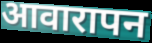
आवारापन